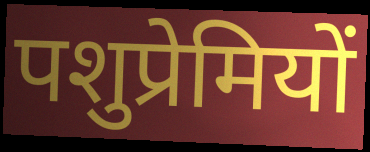
पशुप्रेमियों